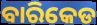
ବାରିକେଡ